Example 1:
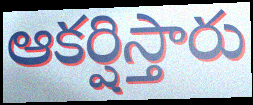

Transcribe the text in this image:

ఆకర్షిస్తారు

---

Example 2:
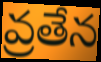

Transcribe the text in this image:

వ్రతేన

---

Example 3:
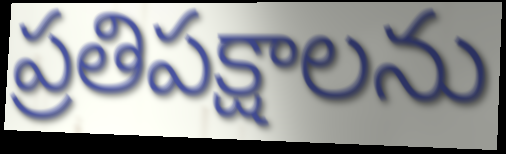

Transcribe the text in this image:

ప్రతిపక్షాలను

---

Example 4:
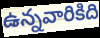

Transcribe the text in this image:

ఉన్నవారికిది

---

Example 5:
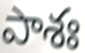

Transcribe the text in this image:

పాశః